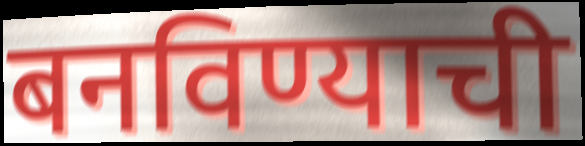
बनविण्याची